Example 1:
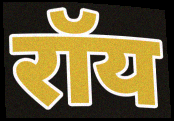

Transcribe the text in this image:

रॉय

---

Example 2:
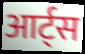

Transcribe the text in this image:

आर्ट्स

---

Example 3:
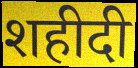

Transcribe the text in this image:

शहीदी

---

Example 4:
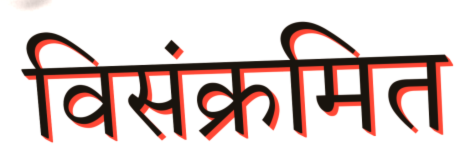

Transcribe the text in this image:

विसंक्रमित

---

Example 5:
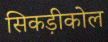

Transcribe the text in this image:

सिकड़ीकोल